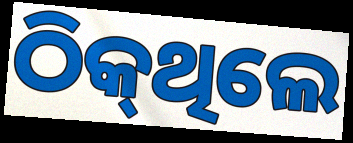
ଠିକ୍‌ଥିଲେ